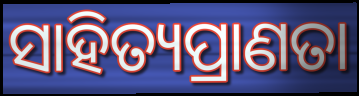
ସାହିତ୍ୟପ୍ରାଣତା